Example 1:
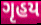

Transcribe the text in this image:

ગૃહય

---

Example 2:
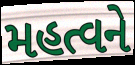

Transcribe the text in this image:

મહત્વને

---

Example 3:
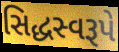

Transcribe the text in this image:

સિદ્ધસ્વરૂપે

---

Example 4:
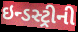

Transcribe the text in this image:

ઇન્ડસ્ટ્રીની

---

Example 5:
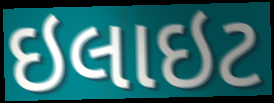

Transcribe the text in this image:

ઇલાઇટ